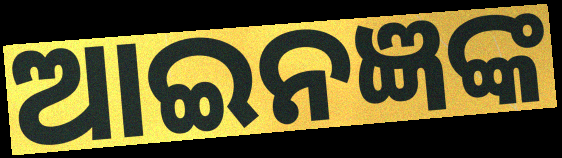
ଆଇନଜ୍ଞଙ୍କ